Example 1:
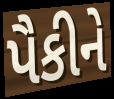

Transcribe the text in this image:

પૈકીને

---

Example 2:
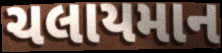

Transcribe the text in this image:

ચલાયમાન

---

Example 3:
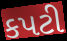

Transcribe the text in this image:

કપટી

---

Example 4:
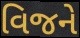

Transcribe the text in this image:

વિજને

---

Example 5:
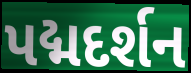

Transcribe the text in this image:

પદ્મદર્શન